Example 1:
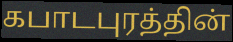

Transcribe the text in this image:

கபாடபுரத்தின்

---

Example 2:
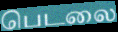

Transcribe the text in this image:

பெடலை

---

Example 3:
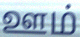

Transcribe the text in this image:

ஊம்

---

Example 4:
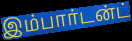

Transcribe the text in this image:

இம்பார்டன்ட்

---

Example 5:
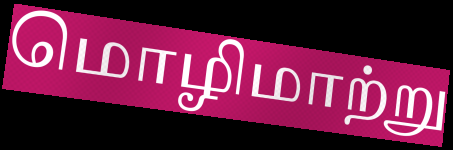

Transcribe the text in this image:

மொழிமாற்று